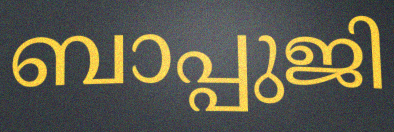
ബാപ്പുജി